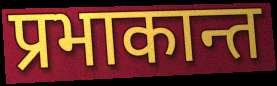
प्रभाकान्त